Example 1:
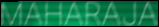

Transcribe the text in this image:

MAHARAJA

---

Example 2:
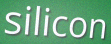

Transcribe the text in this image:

silicon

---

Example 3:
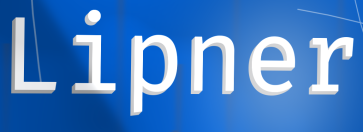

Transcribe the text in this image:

Lipner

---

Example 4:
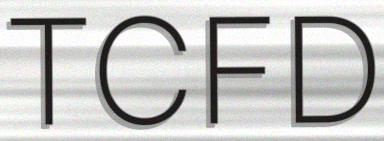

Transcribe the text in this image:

TCFD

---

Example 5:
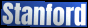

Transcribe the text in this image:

Stanford